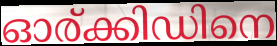
ഓര്ക്കിഡിനെ